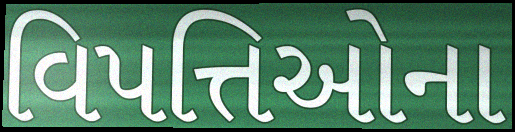
વિપત્તિઓના